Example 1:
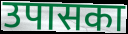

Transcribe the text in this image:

उपासका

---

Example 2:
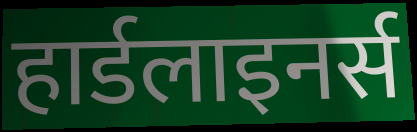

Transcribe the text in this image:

हार्डलाइनर्स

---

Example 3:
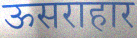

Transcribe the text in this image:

ऊसराहार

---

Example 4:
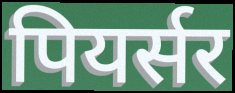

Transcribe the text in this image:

पियर्सर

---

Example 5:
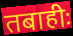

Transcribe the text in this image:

तबाहीः